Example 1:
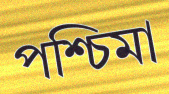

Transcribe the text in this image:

পশ্চিমা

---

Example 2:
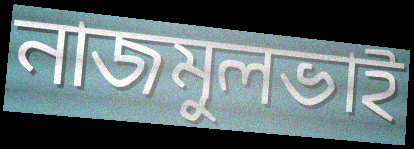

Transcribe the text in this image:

নাজমুলভাই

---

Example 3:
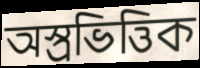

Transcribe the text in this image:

অস্ত্রভিত্তিক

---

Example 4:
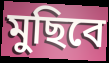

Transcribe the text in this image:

মুছিবে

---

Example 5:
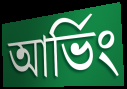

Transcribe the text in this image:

আর্ভিং